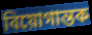
বিয়োগান্তক